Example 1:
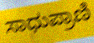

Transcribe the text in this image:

ಸಾಧುಪ್ರಾಣಿ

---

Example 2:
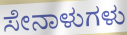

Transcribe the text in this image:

ಸೇನಾಳುಗಳು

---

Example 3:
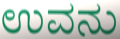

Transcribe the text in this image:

ಉವನು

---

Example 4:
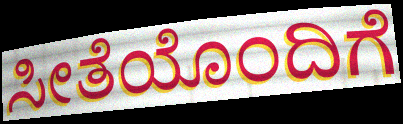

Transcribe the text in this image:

ಸೀತೆಯೊಂದಿಗೆ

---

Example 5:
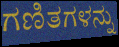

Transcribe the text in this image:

ಗಣಿತಗಳನ್ನು